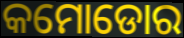
କମୋଡୋର